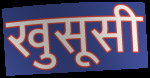
खुसूसी